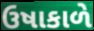
ઉષાકાળે